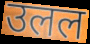
उलल